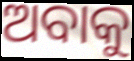
ଅବାକୁ